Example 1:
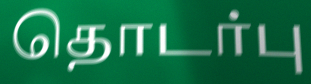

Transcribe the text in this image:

தொடர்பு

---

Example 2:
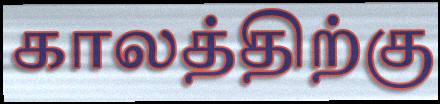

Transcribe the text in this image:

காலத்திற்கு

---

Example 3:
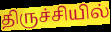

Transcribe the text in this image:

திருச்சியில்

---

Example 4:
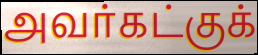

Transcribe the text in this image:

அவர்கட்குக்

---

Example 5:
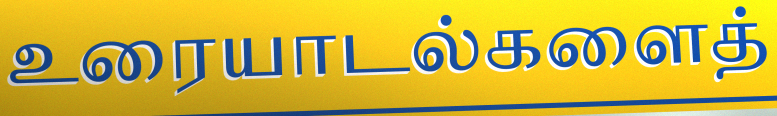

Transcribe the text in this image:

உரையாடல்களைத்